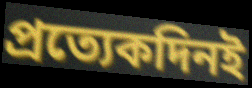
প্রত্যেকদিনই